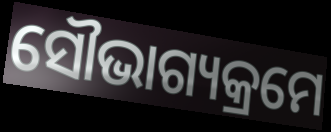
ସୌଭାଗ୍ୟକ୍ରମେ